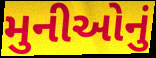
મુનીઓનું